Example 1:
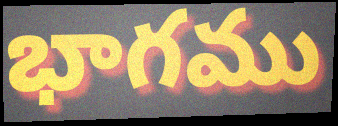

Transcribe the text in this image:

భాగము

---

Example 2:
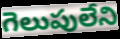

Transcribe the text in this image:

గెలుపులేని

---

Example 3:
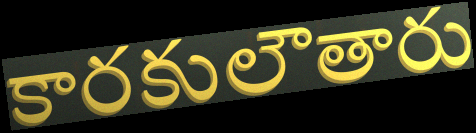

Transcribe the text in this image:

కారకులౌతారు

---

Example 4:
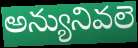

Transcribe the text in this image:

అన్యునివలె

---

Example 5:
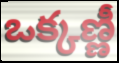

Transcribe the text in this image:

ఒక్కణ్ణీ